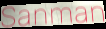
Sanman